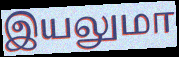
இயலுமா